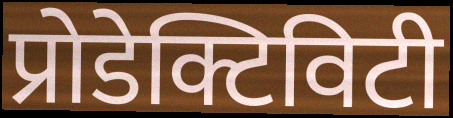
प्रोडेक्टिविटी